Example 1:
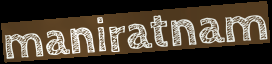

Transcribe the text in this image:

maniratnam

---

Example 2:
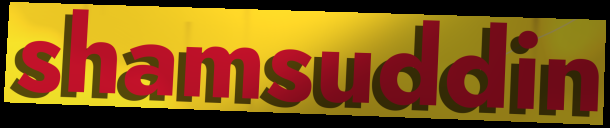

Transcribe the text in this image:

shamsuddin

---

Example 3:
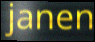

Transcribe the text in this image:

janen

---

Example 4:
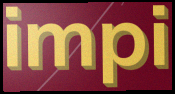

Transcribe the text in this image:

impi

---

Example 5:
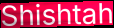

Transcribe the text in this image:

Shishtah